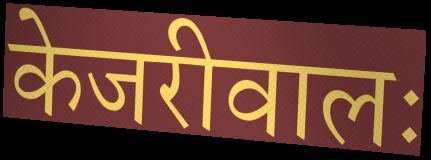
केजरीवालः